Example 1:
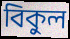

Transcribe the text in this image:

বিকুল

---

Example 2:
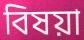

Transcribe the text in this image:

বিষয়া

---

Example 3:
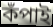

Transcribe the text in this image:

কঁপাই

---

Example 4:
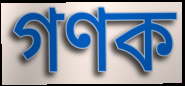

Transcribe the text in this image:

গণক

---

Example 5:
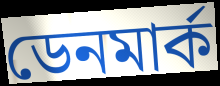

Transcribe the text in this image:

ডেনমাৰ্ক